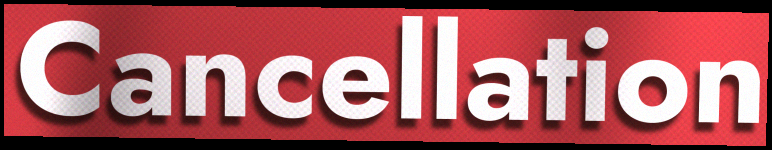
Cancellation